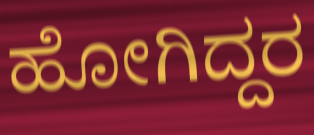
ಹೋಗಿದ್ದರ